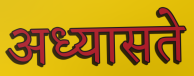
अध्यासते